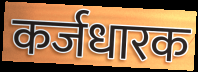
कर्जधारक